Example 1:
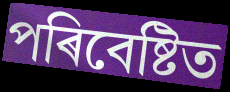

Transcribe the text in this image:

পৰিবেষ্টিত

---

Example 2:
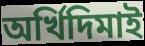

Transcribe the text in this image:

অৰ্খিদিমাই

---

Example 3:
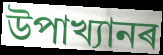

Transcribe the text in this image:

উপাখ্যানৰ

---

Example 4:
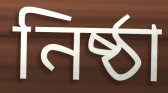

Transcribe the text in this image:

নিষ্ঠা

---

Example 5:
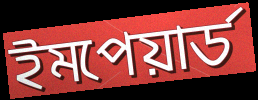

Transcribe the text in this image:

ইমপেয়াৰ্ড